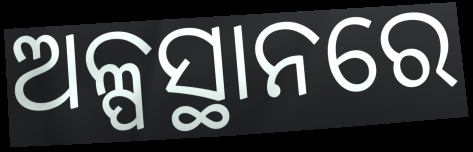
ଅଳ୍ପସ୍ଥାନରେ